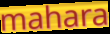
mahara